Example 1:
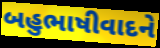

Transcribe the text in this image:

બહુભાષીવાદને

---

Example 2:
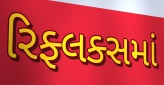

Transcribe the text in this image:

રિફ્લક્સમાં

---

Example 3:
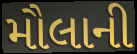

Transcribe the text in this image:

મૌલાની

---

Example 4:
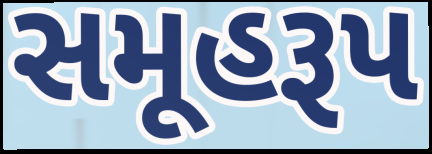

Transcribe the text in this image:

સમૂહરૂપ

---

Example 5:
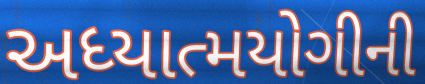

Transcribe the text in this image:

અધ્યાત્મયોગીની